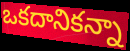
ఒకదానికన్నా